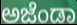
ಅಜೆಂಡಾ